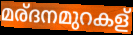
മര്ദനമുറകള്